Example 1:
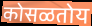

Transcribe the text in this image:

कोसळतोय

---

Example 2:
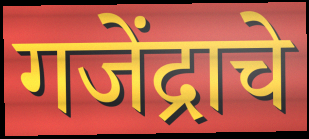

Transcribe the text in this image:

गजेंद्राचे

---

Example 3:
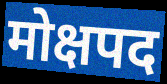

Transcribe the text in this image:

मोक्षपद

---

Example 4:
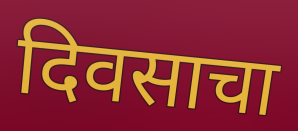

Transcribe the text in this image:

दिवसाचा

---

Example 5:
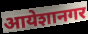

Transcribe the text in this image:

आयेशानगर